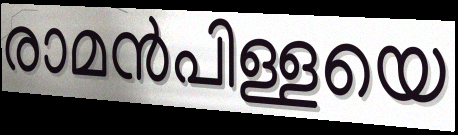
രാമൻപിള്ളയെ